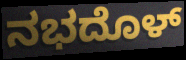
ನಭದೊಳ್